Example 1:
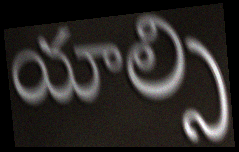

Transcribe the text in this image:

యాల్సి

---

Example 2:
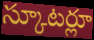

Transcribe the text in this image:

స్కూటర్లూ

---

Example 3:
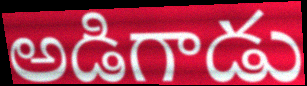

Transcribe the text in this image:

అడిగాడు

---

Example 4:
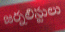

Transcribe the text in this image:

జర్నలిస్టులు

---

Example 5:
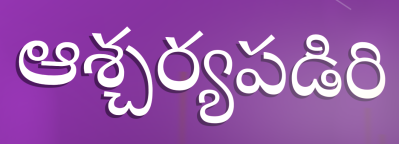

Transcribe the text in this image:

ఆశ్చర్యపడిరి